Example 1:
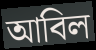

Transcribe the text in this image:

আবিল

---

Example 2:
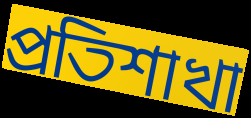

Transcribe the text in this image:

প্রতিশাখা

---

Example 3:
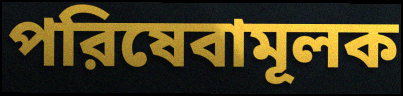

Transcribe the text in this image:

পরিষেবামূলক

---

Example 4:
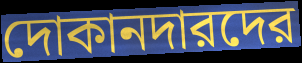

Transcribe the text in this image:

দোকানদারদের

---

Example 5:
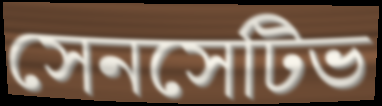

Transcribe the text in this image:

সেনসেটিভ